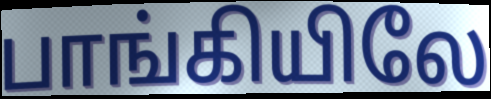
பாங்கியிலே